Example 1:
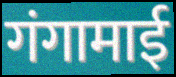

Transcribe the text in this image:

गंगामाई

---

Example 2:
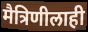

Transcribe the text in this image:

मैत्रिणीलाही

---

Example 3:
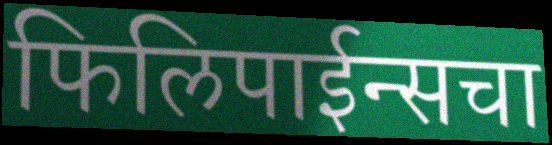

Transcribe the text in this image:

फिलिपाईन्सचा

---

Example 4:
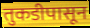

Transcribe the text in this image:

तुकडीपासून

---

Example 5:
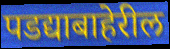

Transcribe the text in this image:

पडद्याबाहेरील